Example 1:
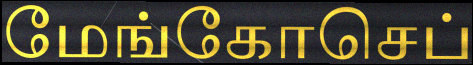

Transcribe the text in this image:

மேங்கோசெப்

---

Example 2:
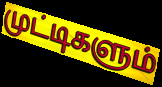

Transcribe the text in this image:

முட்டிகளும்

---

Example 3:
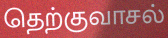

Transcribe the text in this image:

தெற்குவாசல்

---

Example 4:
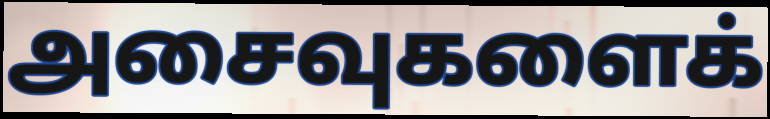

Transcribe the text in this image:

அசைவுகளைக்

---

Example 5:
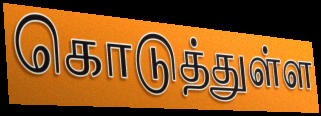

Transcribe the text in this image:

கொடுத்துள்ள